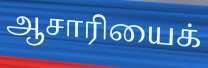
ஆசாரியைக்